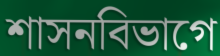
শাসনবিভাগে